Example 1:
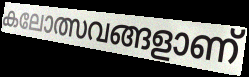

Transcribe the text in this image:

കലോത്സവങ്ങളാണ്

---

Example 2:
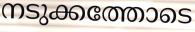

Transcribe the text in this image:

നടുക്കത്തോടെ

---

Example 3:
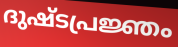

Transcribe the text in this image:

ദുഷ്ടപ്രജ്ഞം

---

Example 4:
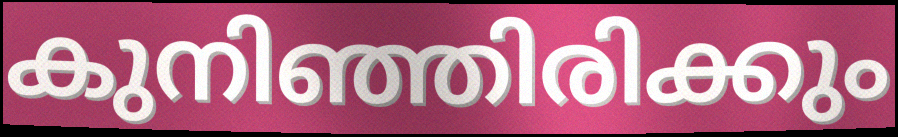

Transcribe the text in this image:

കുനിഞ്ഞിരിക്കും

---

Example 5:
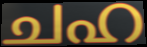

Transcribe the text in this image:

ചഹ